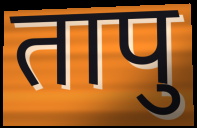
तापु